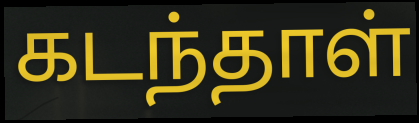
கடந்தாள்